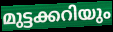
മുട്ടക്കറിയും